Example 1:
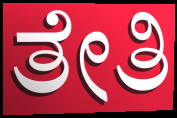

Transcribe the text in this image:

ತೇತಿ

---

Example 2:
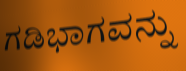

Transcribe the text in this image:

ಗಡಿಭಾಗವನ್ನು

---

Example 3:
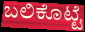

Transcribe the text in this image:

ಬಲಿಕೊಟ್ಟೆ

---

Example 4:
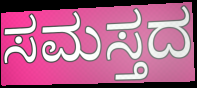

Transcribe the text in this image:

ಸಮಸ್ತದ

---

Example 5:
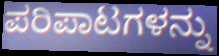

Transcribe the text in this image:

ಪರಿಪಾಟಗಳನ್ನು